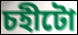
চহীটো